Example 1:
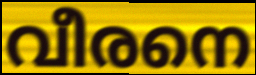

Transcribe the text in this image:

വീരനെ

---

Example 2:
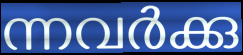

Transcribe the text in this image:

ന്നവർക്കു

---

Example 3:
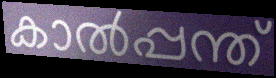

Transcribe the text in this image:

കാൽപ്പന്ത്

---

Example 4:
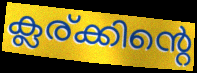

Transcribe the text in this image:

ക്ലര്ക്കിന്റെ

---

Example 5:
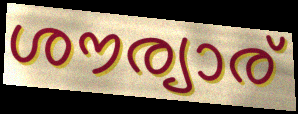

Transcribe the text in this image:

ശൗര്യാര്